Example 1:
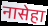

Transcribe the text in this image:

नासेहा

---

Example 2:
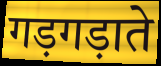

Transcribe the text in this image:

गड़गड़ाते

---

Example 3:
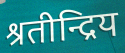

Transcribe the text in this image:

श्रतीन्द्रिय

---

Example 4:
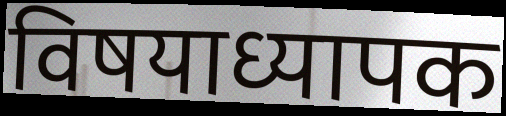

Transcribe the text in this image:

विषयाध्यापक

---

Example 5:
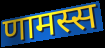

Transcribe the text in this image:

णामस्स